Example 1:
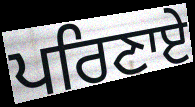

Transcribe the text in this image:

ਪਰਿਣਾਏ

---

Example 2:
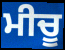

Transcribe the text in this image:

ਮੀਚੂ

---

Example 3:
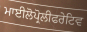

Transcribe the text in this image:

ਮਾਈਲੋਪ੍ਰੋਲੀਫਰੇਟਿਵ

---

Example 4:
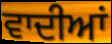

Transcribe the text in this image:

ਵਾਦੀਆਂ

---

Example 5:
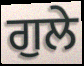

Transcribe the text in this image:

ਗੁਲੇ